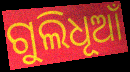
ଗୁଲିଧୂଆଁ